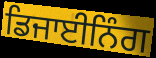
ਡਿਜਾਈਨਿੰਗ